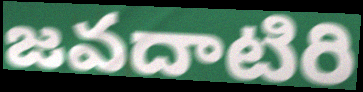
జవదాటిరి